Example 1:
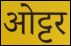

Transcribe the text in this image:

ओट्टर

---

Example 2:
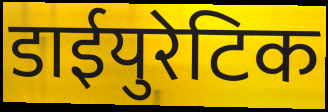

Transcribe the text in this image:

डाईयुरेटिक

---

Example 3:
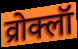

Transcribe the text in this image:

व्रोक्लॉ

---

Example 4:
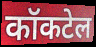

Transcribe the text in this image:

कॉकटेल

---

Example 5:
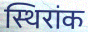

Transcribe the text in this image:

स्थिरांक